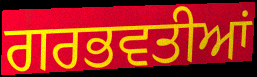
ਗਰਭਵਤੀਆਂ